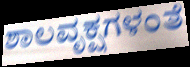
ಶಾಲವೃಕ್ಷಗಳಂತೆ